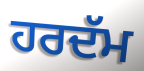
ਹਰਦੱਮ